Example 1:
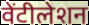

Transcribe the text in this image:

वेंटीलेशन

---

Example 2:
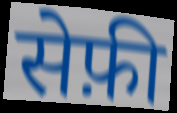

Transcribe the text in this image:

सेफ़ी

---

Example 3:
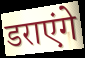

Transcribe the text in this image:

डराएंगे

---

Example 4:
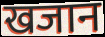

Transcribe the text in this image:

खजान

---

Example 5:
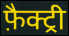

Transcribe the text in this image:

फ़ैक्ट्री